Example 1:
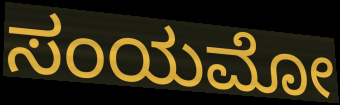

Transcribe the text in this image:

ಸಂಯಮೋ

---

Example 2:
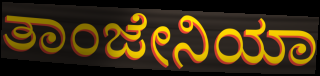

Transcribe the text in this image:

ತಾಂಜೇನಿಯಾ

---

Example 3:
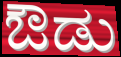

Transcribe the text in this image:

ಔಡು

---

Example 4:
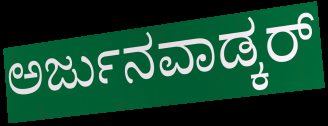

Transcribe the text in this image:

ಅರ್ಜುನವಾಡ್ಕರ್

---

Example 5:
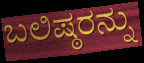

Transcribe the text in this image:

ಬಲಿಷ್ಠರನ್ನು